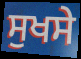
ਸੁਖਸੇ